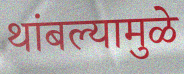
थांबल्यामुळे